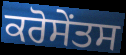
ਕਰੋਸੇਂਤਸ